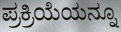
ಪ್ರಕ್ರಿಯೆಯನ್ನೂ